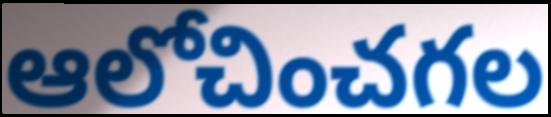
ఆలోచించగల